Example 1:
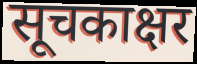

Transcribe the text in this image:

सूचकाक्षर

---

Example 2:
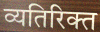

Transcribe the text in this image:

व्यतिरिक्त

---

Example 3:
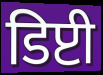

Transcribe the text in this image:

डिप्टी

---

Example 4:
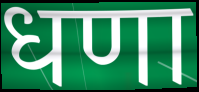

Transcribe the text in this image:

धणा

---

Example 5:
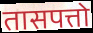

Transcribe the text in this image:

तासपत्तो